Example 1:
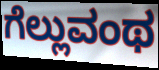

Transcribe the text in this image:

ಗೆಲ್ಲುವಂಥ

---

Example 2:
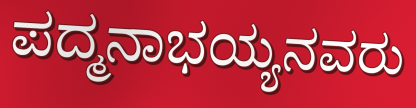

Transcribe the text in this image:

ಪದ್ಮನಾಭಯ್ಯನವರು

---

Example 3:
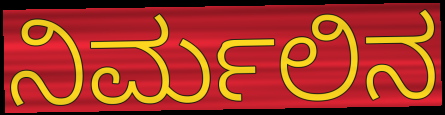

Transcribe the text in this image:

ನಿರ್ಮಲಿನ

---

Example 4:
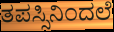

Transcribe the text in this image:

ತಪಸ್ಸಿನಿಂದಲೆ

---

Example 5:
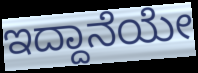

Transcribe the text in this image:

ಇದ್ದಾನೆಯೇ